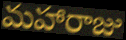
మహారాజు